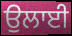
ਉਲਾਈ